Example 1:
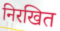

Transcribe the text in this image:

निरखित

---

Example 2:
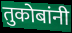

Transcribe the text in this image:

तुकोबांनी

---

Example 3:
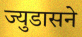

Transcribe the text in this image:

ज्युडासने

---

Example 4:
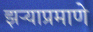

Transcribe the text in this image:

झऱ्याप्रमाणे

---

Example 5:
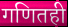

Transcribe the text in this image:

गणितही